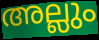
അല്ലും